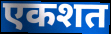
एकशत